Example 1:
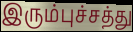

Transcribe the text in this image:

இரும்புச்சத்து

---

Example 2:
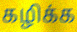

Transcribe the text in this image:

கழிக்க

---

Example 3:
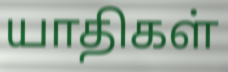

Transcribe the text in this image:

யாதிகள்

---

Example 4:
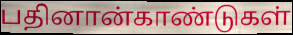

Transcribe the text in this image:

பதினான்காண்டுகள்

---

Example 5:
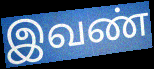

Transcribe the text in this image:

இவண்